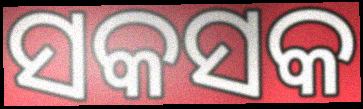
ସକସକ